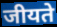
जीयते